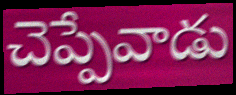
చెప్పేవాడు